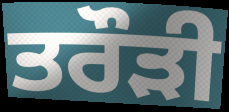
ਤਰੌੜੀ